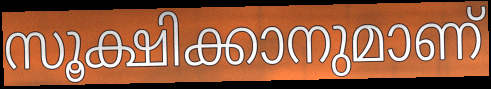
സൂക്ഷിക്കാനുമാണ്